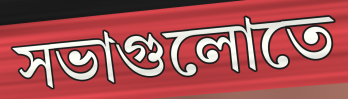
সভাগুলোতে